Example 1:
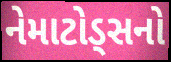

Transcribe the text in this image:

નેમાટોડ્સનો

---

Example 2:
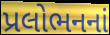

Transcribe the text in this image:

પ્રલોભનનાં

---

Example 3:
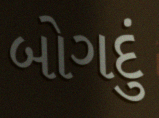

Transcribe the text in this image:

બોગદું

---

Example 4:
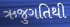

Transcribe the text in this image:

ઋજુગતિથી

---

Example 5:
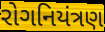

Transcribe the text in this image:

રોગનિયંત્રણ